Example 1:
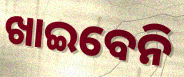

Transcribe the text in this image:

ଖାଇବେନି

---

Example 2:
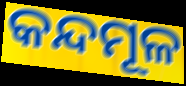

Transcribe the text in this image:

କନ୍ଦମୂଳ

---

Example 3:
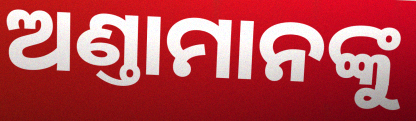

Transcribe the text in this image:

ଅଣ୍ତାମାନଙ୍କୁ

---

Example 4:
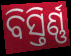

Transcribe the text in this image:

ବିସ୍ତିର୍ଣ୍ଣ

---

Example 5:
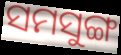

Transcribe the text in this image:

ସମସୁଙ୍ଗ